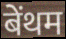
बेंथम